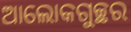
ଆଲୋକଗୁଚ୍ଛର